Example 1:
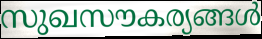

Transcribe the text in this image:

സുഖസൗകര്യങ്ങൾ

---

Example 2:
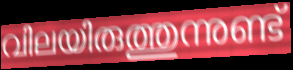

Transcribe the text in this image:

വിലയിരുത്തുന്നുണ്ട്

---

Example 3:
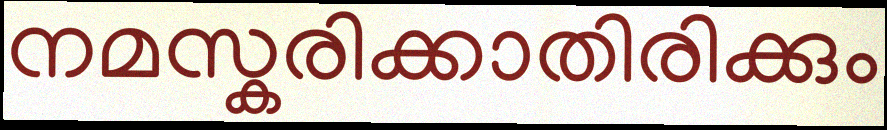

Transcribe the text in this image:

നമസ്കരിക്കാതിരിക്കും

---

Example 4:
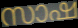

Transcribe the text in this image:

സാഷ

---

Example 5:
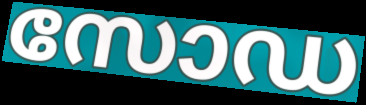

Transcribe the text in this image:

സോഡ